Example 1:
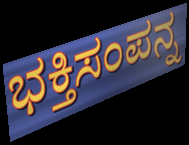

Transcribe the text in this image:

ಭಕ್ತಿಸಂಪನ್ನ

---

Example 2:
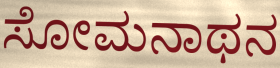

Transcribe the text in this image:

ಸೋಮನಾಥನ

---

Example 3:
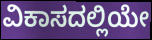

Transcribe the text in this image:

ವಿಕಾಸದಲ್ಲಿಯೇ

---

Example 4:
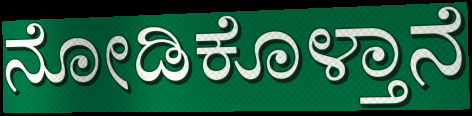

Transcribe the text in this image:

ನೋಡಿಕೊಳ್ತಾನೆ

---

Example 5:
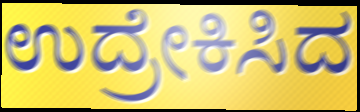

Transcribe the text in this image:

ಉದ್ರೇಕಿಸಿದ